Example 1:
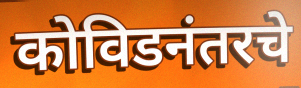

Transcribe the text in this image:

कोविडनंतरचे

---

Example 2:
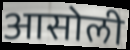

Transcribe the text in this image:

आसोली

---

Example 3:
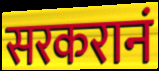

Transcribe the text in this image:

सरकरानं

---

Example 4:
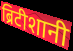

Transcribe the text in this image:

ब्रिटीशानी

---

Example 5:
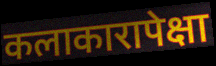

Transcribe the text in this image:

कलाकारापेक्षा